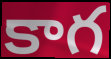
కాగ